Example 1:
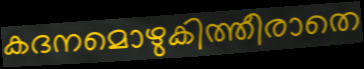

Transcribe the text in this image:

കദനമൊഴുകിത്തീരാതെ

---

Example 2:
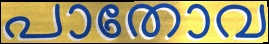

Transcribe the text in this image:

പാതോവ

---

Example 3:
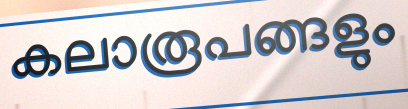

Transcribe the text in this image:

കലാരൂപങ്ങളും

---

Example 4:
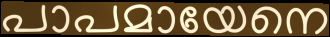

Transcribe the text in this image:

പാപമായേനെ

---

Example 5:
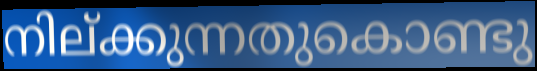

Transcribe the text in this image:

നില്ക്കുന്നതുകൊണ്ടു